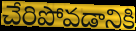
చేరిపోవడానికి